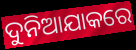
ଦୁନିଆଯାକରେ